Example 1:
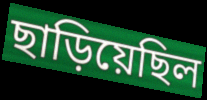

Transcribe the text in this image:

ছাড়িয়েছিল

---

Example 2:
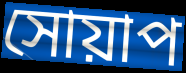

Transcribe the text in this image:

সোয়াপ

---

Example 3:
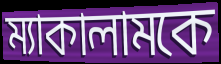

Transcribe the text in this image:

ম্যাকালামকে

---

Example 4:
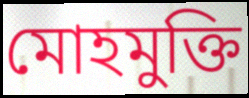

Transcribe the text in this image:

মোহমুক্তি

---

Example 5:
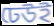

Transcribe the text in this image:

ঢেউই